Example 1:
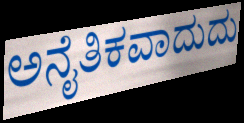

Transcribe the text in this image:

ಅನೈತಿಕವಾದುದು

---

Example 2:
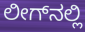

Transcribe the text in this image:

ಲೀಗ್‌ನಲ್ಲಿ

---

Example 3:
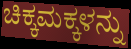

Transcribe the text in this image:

ಚಿಕ್ಕಮಕ್ಕಳನ್ನು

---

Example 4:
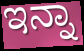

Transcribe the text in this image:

ಇನ್ನಾ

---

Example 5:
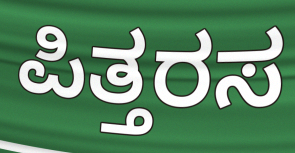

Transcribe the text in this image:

ಪಿತ್ತರಸ